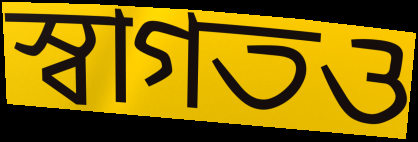
স্বাগতও